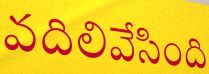
వదిలివేసింది